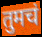
तुमचं